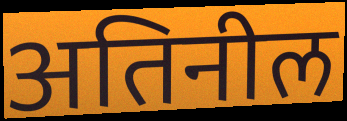
अतिनील